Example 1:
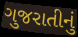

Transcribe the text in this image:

ગુજરાતીનું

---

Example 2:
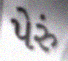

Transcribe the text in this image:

પેરું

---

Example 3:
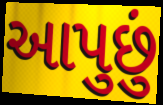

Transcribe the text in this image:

આપુછું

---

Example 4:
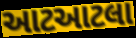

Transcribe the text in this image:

આટઆટલા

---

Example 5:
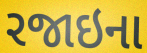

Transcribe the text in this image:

રજાઇના